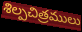
శిల్పచిత్రములు